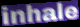
inhale